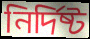
নিৰ্দিষ্ট